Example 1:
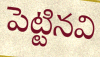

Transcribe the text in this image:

పెట్టినవి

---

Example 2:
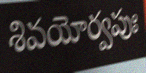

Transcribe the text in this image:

శివయోర్వపుః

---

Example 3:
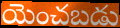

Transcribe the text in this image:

యెంచబడు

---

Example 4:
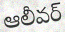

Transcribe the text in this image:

ఆలీవర్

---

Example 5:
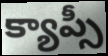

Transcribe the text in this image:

క్యాప్సీ